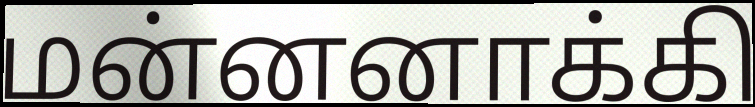
மன்னனாக்கி